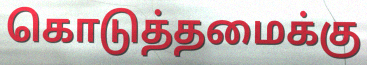
கொடுத்தமைக்கு